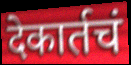
देकार्तचं